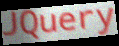
JQuery